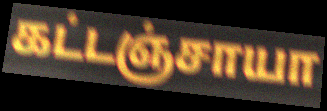
கட்டஞ்சாயா